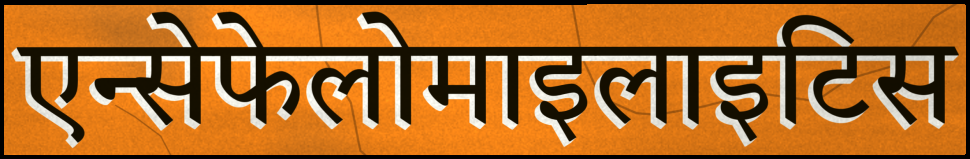
एन्सेफेलोमाइलाइटिस